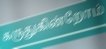
கருதுகின்றோம்